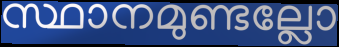
സ്ഥാനമുണ്ടല്ലോ